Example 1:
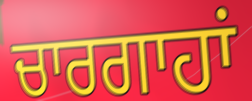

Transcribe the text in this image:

ਚਾਰਗਾਹਾਂ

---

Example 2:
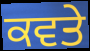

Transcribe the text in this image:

ਕਵਤੇ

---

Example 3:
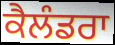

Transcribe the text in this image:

ਕੈਲੰਡਰਾ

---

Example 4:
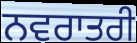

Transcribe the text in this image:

ਨਵਰਾਤਰੀ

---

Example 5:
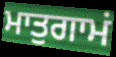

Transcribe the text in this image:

ਮਾਤੁਗਾਮਂ